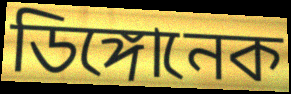
ডিঙ্গোনেক